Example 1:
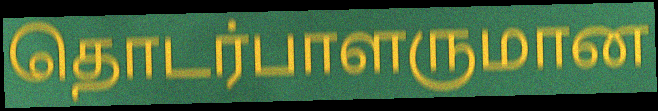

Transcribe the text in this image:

தொடர்பாளருமான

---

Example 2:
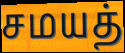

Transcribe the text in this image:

சமயத்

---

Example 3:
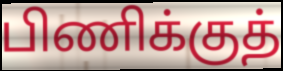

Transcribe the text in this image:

பிணிக்குத்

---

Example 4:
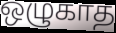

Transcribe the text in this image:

ஒழுகாத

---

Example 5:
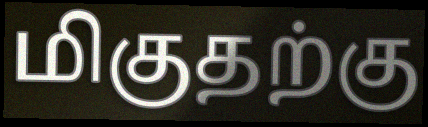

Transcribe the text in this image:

மிகுதற்கு